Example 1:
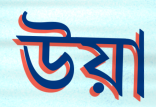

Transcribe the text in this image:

উয়া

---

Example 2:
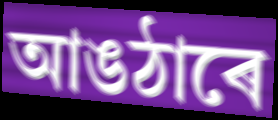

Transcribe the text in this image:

আঙঠাৰে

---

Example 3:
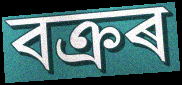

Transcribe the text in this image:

বক্ৰৰ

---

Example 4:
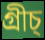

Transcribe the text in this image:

গ্ৰীচ্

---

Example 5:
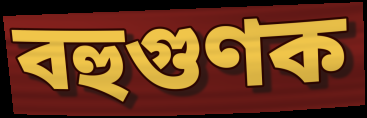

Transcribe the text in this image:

বহুগুণক